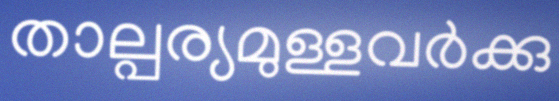
താല്പര്യമുള്ളവർക്കു